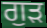
ਗੁੜ